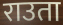
राउता